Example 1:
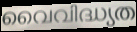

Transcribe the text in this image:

വൈവിദ്ധ്യത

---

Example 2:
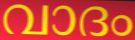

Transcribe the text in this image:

വാദം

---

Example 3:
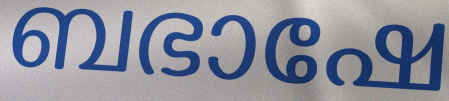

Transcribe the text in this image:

ബഭാഷേ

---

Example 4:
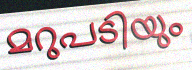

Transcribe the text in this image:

മറുപടിയും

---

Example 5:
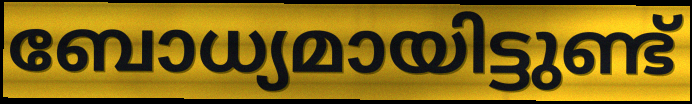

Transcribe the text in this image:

ബോധ്യമായിട്ടുണ്ട്